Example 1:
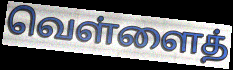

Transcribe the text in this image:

வெள்ளைத்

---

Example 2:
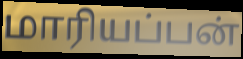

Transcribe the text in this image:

மாரியப்பன்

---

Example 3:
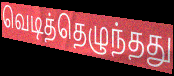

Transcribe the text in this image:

வெடித்தெழுந்தது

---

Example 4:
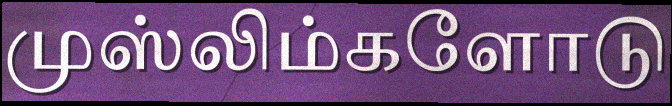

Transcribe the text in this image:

முஸ்லிம்களோடு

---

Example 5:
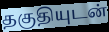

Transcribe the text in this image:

தகுதியுடன்